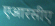
एआरसीए